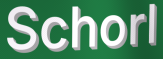
Schorl